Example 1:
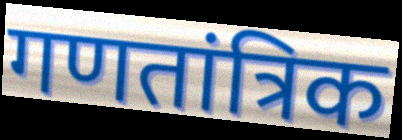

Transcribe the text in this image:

गणतांत्रिक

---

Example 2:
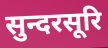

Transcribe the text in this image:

सुन्दरसूरि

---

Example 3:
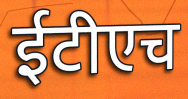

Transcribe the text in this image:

ईटीएच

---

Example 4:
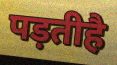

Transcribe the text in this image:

पड़तीहै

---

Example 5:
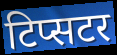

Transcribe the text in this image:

टिप्सटर